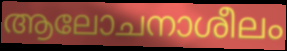
ആലോചനാശീലം